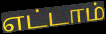
எட்டாம்